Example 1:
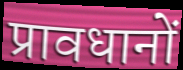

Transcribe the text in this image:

प्रावधानों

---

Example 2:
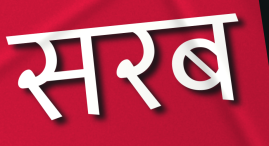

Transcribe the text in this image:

सरब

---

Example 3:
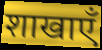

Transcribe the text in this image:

शाखाएँ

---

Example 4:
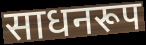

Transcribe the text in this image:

साधनरूप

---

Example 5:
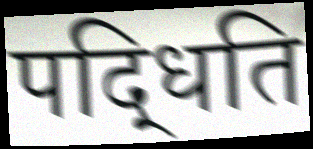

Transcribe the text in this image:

पद्धिति